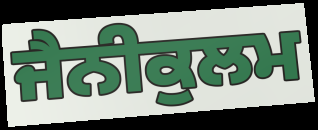
ਜੈਨੀਕੁਲਮ